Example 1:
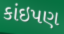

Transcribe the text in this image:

કાંઇપણ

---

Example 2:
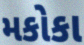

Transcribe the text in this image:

મકોકા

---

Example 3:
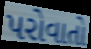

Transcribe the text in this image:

પરોવાતો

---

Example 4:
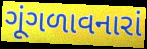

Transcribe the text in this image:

ગૂંગળાવનારાં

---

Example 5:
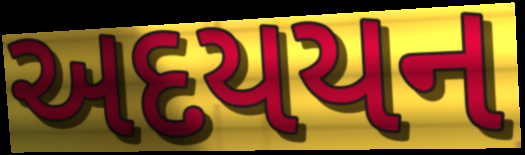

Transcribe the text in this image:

અદયયન